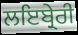
ਲਇਬ੍ਰੇਰੀ